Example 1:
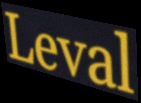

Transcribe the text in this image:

Leval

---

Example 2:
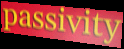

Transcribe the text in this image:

passivity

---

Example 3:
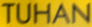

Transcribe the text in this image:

TUHAN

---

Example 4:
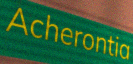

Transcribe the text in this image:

Acherontia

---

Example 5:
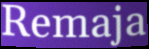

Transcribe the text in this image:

Remaja